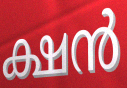
ക്ഷൻ